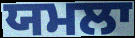
ਯਮਲਾ